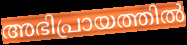
അഭിപ്രായത്തിൽ